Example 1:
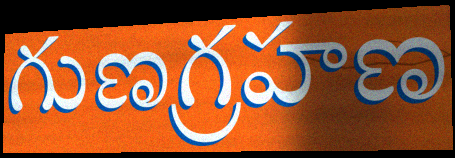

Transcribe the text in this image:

గుణగ్రహణ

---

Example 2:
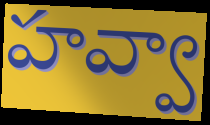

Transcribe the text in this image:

హవ్వా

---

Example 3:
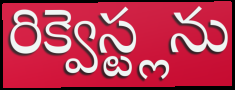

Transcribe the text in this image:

రిక్వెస్ట్లను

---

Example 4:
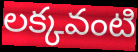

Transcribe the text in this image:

లక్కవంటి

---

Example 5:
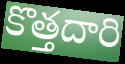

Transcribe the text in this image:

కొత్తదారి